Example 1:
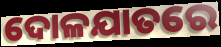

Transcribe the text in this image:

ଦୋଳଯାତରେ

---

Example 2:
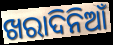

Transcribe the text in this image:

ଖରାଦିନିଆଁ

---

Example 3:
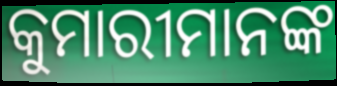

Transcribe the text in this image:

କୁମାରୀମାନଙ୍କ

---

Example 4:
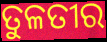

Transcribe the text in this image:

ତୁଳତୀର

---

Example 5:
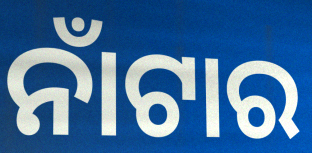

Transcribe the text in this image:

ନାଁଟାର